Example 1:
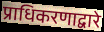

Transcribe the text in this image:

प्राधिकरणाद्वारे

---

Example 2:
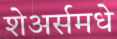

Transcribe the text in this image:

शेअर्समधे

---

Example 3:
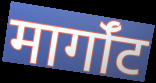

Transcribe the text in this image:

मार्गॉट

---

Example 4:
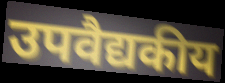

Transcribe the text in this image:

उपवैद्यकीय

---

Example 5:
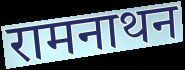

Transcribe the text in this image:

रामनाथन